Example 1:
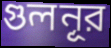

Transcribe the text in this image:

গুলনূর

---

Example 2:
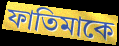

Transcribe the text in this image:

ফাতিমাকে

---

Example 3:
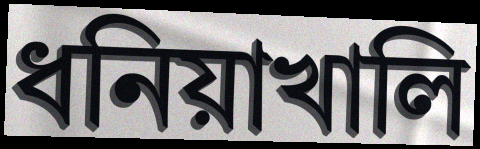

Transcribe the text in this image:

ধনিয়াখালি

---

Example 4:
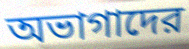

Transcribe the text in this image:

অভাগাদের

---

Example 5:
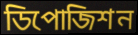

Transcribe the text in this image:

ডিপোজিশন